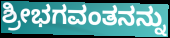
ಶ್ರೀಭಗವಂತನನ್ನು